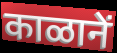
काळानें